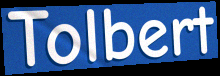
Tolbert